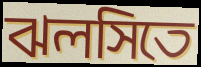
ঝলসিতে